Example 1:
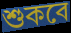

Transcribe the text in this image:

শুকবে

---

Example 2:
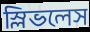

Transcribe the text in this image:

স্লিভলেস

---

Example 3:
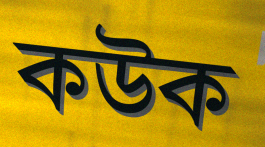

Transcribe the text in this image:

কউক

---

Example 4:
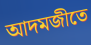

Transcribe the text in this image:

আদমজীতে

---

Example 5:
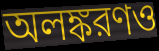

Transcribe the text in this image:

অলঙ্করণও